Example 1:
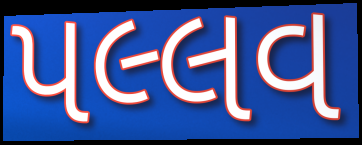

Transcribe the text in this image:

પલ્લવ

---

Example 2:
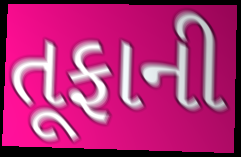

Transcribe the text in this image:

તૂફાની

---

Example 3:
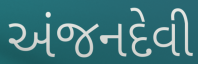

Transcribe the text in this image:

અંજનદેવી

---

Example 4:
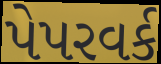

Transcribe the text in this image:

પેપરવર્ક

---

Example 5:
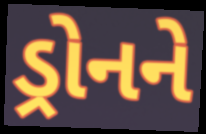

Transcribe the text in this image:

ડ્રોનને